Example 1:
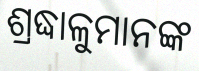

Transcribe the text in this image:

ଶ୍ରଦ୍ଧାଳୁମାନଙ୍କ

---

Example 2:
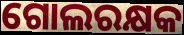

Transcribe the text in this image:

ଗୋଲରକ୍ଷକ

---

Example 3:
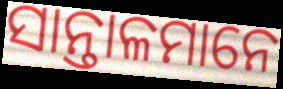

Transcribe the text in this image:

ସାନ୍ତାଳମାନେ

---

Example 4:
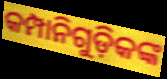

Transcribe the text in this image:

କମ୍ପାନିଗୁଡ଼ିକଙ୍କ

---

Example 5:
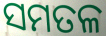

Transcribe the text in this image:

ସମତଳ